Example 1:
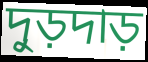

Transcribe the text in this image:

দুড়দাড়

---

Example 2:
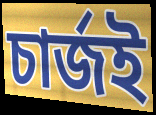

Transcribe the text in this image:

চার্জই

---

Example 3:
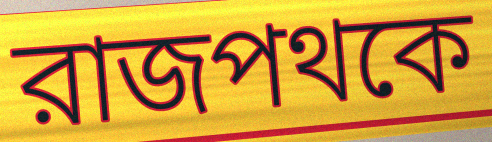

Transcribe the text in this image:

রাজপথকে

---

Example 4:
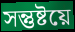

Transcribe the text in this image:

সন্তুষ্টয়ে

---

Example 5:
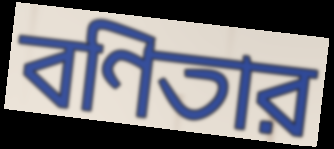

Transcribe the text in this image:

বণিতার